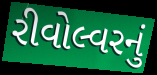
રીવોલ્વરનું